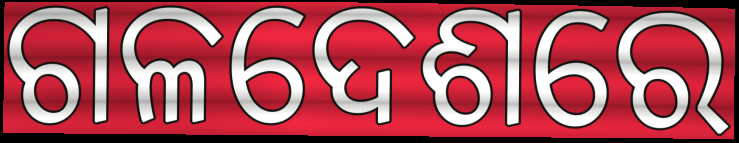
ଗଳଦେଶରେ